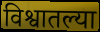
विश्वातल्या